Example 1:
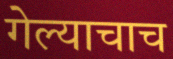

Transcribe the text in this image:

गेल्याचाच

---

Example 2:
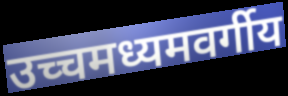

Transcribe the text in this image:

उच्चमध्यमवर्गीय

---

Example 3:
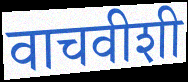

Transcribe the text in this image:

वाचवीशी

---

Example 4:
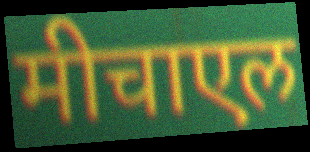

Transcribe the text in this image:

मीचाएल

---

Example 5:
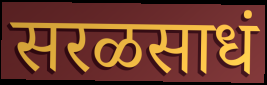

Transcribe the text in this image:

सरळसाधं